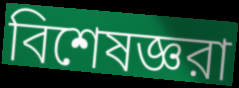
বিশেষজ্ঞরা